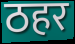
ठहर